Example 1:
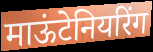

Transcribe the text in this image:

माऊंटेनियरिंग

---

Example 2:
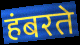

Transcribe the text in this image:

हंबरते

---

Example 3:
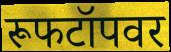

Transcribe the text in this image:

रूफटॉपवर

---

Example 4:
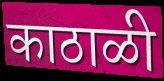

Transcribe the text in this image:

काठाळी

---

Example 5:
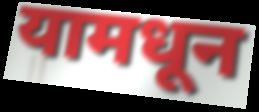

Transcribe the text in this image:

यामधून